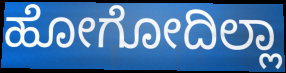
ಹೋಗೋದಿಲ್ಲಾ